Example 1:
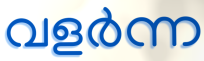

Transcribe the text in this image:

വളർന്ന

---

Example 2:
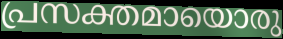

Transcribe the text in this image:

പ്രസക്തമായൊരു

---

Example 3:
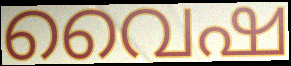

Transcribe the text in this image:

വൈഷ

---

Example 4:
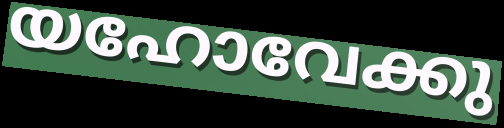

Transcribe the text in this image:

യഹോവേക്കു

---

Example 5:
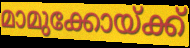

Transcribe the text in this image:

മാമുക്കോയ്ക്ക്